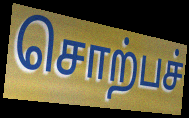
சொற்பச்